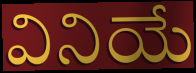
వినియే